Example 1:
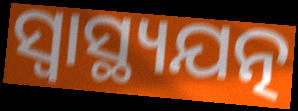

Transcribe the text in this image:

ସ୍ୱାସ୍ଥ୍ୟଯତ୍ନ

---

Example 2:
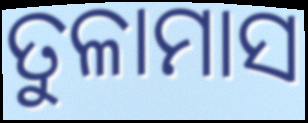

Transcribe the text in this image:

ତୁଳାମାସ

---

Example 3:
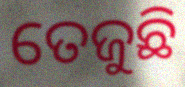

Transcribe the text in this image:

ତେଜୁଛି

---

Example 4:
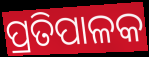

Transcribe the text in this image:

ପ୍ରତିପାଳକ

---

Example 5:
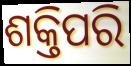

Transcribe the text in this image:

ଶକ୍ତିପରି